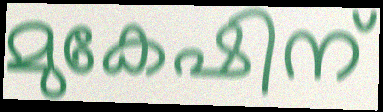
മുകേഷിന്